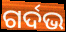
ଗର୍ଦଭ